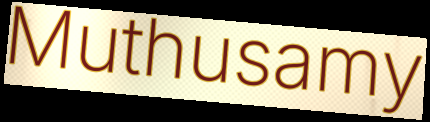
Muthusamy